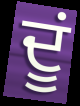
ਦੂਂ